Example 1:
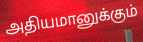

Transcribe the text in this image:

அதியமானுக்கும்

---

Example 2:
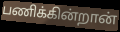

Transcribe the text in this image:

பணிக்கின்றான்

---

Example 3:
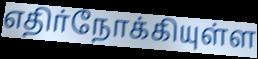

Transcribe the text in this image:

எதிர்நோக்கியுள்ள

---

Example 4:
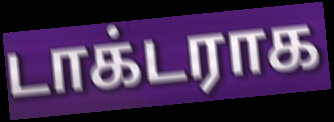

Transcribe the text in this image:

டாக்டராக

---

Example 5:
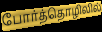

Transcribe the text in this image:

போர்த்தொழிலில்